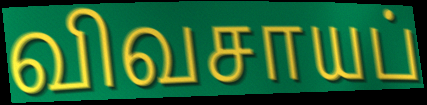
விவசாயப்